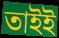
তাইই